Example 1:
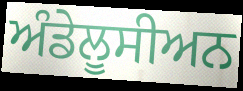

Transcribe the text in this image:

ਅੰਡੇਲੂਸੀਅਨ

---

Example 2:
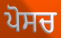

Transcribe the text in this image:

ਪੋਸਚ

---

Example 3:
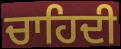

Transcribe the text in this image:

ਚਾਹਿਦੀ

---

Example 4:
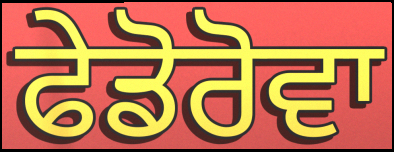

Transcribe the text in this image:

ਫੇਡੋਰੋਵਾ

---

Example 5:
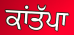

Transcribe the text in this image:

ਕਾਂਤੱਪਾ